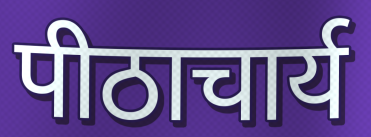
पीठाचार्य